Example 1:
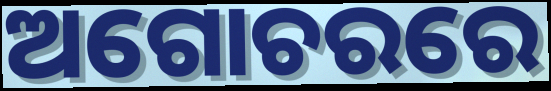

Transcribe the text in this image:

ଅଗୋଚରରେ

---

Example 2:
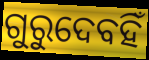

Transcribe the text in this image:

ଗୁରୁଦେବହିଁ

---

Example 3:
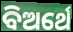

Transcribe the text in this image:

ବିଅର୍ଥେ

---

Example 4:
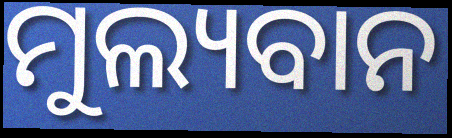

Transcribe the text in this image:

ମୁଲ୍ୟବାନ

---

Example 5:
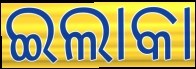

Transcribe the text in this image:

ଇଲାକା